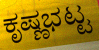
ಕೃಷ್ಣಭಟ್ಟ